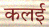
कलई